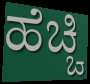
ಹೆಚ್ಚಿ